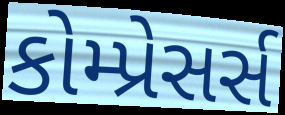
કોમ્પ્રેસર્સ